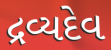
દ્રવ્યદેવ